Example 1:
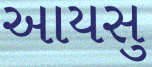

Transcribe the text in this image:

આયસુ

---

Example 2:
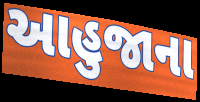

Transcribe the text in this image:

આહુજાના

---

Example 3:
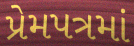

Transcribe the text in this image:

પ્રેમપત્રમાં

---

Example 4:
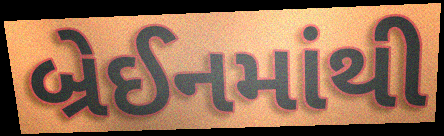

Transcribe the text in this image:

બ્રેઈનમાંથી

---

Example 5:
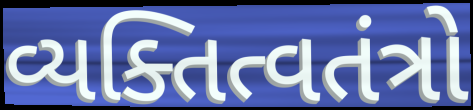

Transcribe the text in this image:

વ્યક્તિત્વતંત્રો